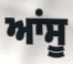
ਆਂਸੂ